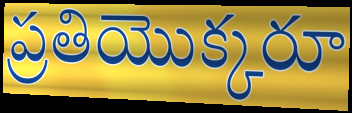
ప్రతియొక్కరూ